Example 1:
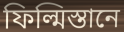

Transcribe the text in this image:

ফিল্মিস্তানে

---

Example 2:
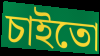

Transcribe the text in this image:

চাইতো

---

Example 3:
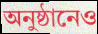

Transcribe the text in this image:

অনুষ্ঠানেও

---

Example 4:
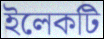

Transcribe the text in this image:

ইলেকটি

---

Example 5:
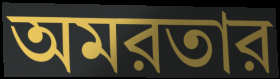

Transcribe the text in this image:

অমরতার